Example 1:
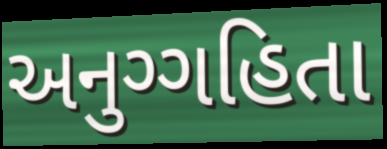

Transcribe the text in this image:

અનુગ્ગહિતા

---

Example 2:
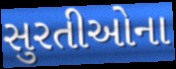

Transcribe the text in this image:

સુરતીઓના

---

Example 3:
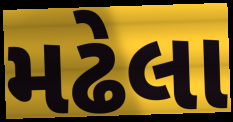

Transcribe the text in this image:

મઢેલા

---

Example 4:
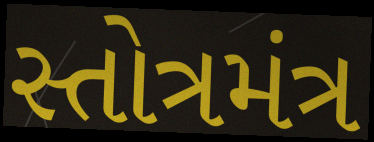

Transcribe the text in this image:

સ્તોત્રમંત્ર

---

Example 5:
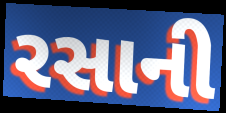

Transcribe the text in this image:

રસાની